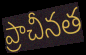
ప్రాచీనత